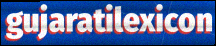
gujaratilexicon